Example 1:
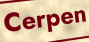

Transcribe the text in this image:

Cerpen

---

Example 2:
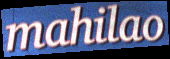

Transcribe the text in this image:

mahilao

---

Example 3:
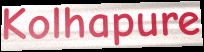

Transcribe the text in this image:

Kolhapure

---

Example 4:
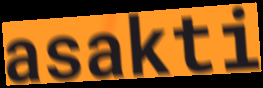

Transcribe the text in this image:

asakti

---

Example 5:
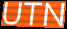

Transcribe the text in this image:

UTN